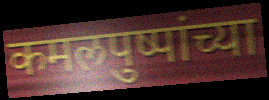
कमलपुष्पांच्या